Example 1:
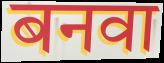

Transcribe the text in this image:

बनवा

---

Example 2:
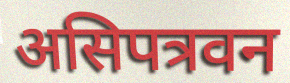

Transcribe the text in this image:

असिपत्रवन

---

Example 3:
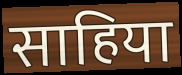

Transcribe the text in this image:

साहिया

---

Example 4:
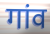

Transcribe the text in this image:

गांव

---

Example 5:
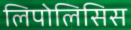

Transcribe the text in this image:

लिपोलिसिस